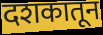
दशकातून